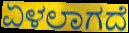
ಏಳಲಾಗದೆ